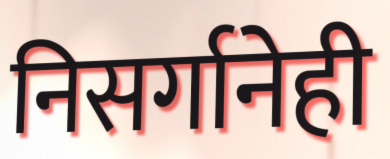
निसर्गानेही